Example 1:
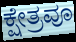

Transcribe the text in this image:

ಕ್ಷೇತ್ರವೂ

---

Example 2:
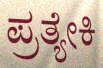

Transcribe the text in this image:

ಪ್ರತ್ಯೇಕಿ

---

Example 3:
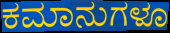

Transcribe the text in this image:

ಕಮಾನುಗಳೂ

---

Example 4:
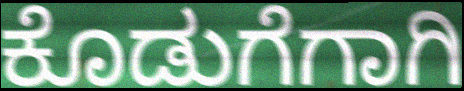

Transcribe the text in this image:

ಕೊಡುಗೆಗಾಗಿ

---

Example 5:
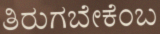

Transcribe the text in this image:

ತಿರುಗಬೇಕೆಂಬ